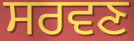
ਸਰਵਣ